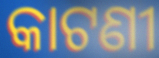
କାଟଣୀ